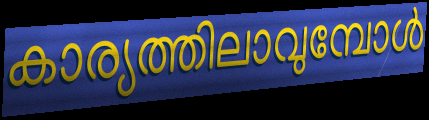
കാര്യത്തിലാവുമ്പോൾ